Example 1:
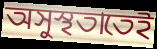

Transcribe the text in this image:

অসুস্থতাতেই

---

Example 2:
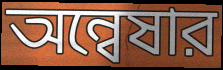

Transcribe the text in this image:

অন্বেষার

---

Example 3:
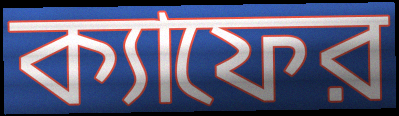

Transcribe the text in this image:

ক্যাফের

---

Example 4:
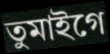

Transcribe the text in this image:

তুমাইগে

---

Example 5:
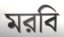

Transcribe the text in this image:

মরবি